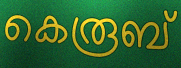
കെരൂബ്